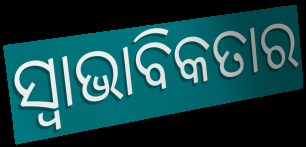
ସ୍ୱାଭାବିକତାର